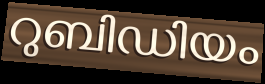
റുബിഡിയം